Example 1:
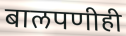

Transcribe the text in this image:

बालपणीही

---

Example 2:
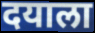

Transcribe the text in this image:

दयाला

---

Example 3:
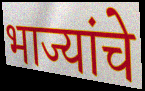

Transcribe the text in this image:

भाज्यांचे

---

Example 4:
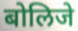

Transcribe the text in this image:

बोलिजे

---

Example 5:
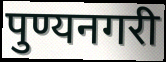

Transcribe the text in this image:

पुण्यनगरी